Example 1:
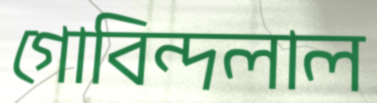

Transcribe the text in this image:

গোবিন্দলাল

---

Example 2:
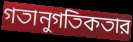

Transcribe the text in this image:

গতানুগতিকতার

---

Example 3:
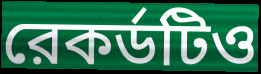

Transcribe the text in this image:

রেকর্ডটিও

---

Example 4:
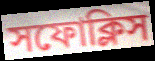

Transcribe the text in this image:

সফোক্লিস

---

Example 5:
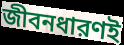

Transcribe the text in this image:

জীবনধারণই